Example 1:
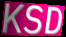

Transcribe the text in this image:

KSD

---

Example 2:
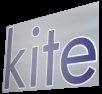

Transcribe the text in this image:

kite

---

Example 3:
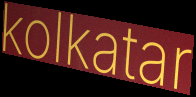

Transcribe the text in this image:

kolkatar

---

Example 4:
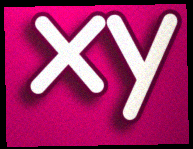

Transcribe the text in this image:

xy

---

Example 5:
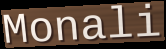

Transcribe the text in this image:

Monali